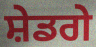
ਸ਼ੇਡਗੇ